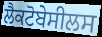
ਲੈਕਟੋਬੇਸੀਲਸ